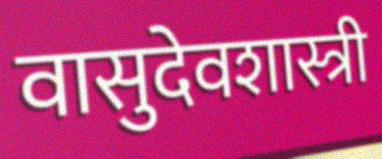
वासुदेवशास्त्री